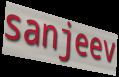
sanjeev